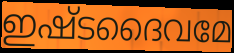
ഇഷ്ടദൈവമേ